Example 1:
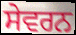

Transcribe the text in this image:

ਸੇਵਰਨ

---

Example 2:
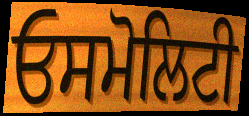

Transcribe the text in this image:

ਓਸਮੋਲਿਟੀ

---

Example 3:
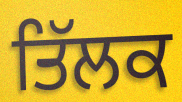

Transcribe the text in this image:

ਤਿੱਲਕ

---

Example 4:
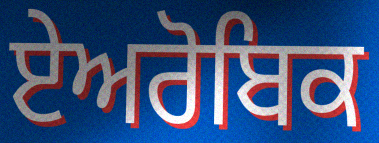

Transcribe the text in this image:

ਏਅਰੋਬਿਕ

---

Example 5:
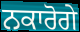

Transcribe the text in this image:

ਨਕਾਰੋਗੇ